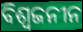
ବିଶ୍ୱଜନୀନ